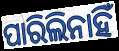
ପାରିଲିନାହିଁ